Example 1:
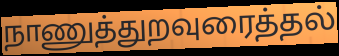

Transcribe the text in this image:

நாணுத்துறவுரைத்தல்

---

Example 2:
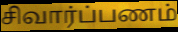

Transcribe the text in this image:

சிவார்ப்பணம்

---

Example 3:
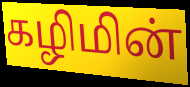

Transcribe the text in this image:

கழிமின்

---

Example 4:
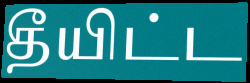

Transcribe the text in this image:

தீயிட்ட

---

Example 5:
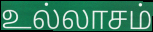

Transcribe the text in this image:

உல்லாசம்